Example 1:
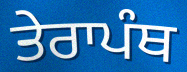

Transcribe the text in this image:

ਤੇਰਾਪੰਥ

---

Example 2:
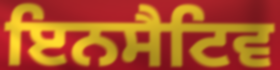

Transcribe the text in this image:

ਇਨਸੈਟਿਵ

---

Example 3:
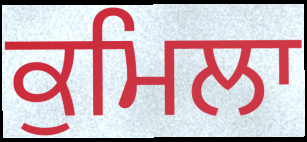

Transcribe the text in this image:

ਕੁਮਿਲਾ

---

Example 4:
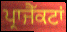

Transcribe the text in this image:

ਪ੍ਰਾਜੈੱਕਟਾਂ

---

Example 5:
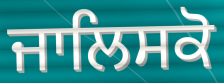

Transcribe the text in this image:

ਜਾਲਿਸਕੋ